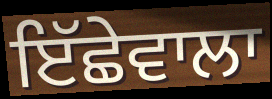
ਇੱਛੇਵਾਲਾ